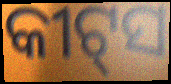
କୀଟ୍‌ସ